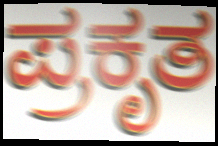
ಪ್ರಕೃತ